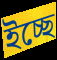
ইচ্ছে